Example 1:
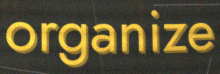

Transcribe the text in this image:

organize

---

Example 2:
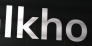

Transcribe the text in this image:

lkho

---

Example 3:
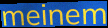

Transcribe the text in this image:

meinem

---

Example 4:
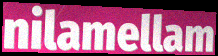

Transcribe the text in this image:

nilamellam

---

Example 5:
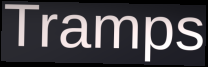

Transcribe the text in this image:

Tramps